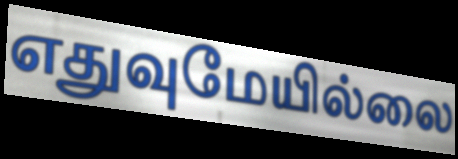
எதுவுமேயில்லை